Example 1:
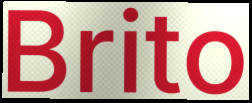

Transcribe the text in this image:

Brito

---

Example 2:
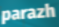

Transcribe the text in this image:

parazh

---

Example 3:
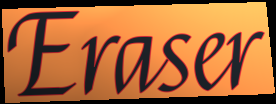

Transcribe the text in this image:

Eraser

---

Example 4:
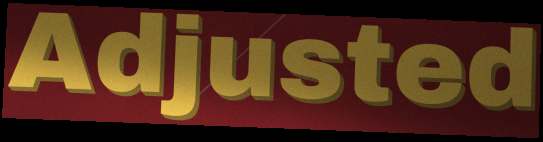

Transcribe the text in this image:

Adjusted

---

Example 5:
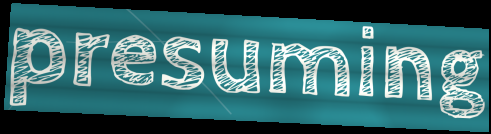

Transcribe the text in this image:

presuming